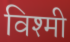
विश्मी